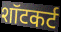
शॉटकर्ट